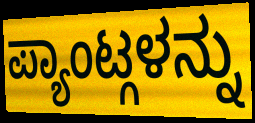
ಪ್ಯಾಂಟ್ಗಳನ್ನು